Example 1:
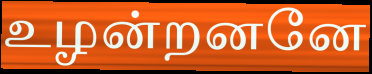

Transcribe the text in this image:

உழன்றனனே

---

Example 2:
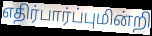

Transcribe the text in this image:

எதிர்பார்ப்புமின்றி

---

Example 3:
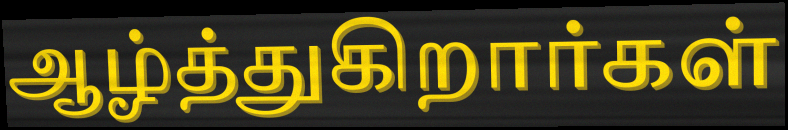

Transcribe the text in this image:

ஆழ்த்துகிறார்கள்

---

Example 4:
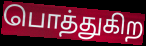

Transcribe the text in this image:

பொத்துகிற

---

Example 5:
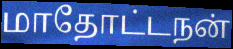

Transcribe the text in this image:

மாதோட்டநன்